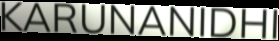
KARUNANIDHI